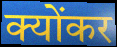
क्‍योंकर